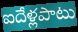
ఐదేళ్లపాటు